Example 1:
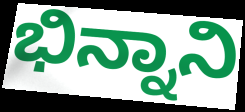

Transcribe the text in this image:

ಭಿನ್ನಾನಿ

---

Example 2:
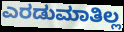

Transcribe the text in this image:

ಎರಡುಮಾತಿಲ್ಲ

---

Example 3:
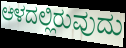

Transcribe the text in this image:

ಆಳದಲ್ಲಿರುವುದು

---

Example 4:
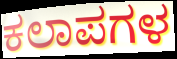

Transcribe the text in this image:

ಕಲಾಪಗಳ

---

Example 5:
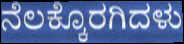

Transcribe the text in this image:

ನೆಲಕ್ಕೊರಗಿದಳು